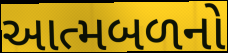
આત્મબળનો